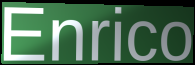
Enrico